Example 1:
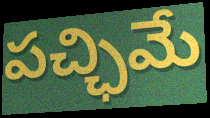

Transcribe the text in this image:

పచ్ఛిమే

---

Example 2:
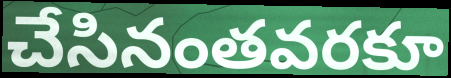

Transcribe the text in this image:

చేసినంతవరకూ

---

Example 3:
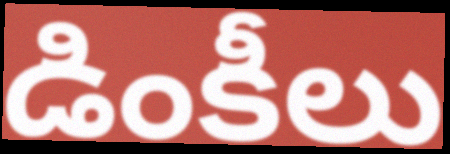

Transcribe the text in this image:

డింకీలు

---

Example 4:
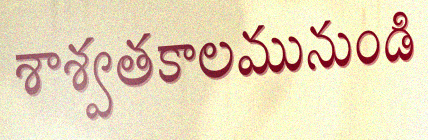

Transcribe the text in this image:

శాశ్వతకాలమునుండి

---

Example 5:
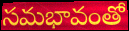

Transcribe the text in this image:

సమభావంతో